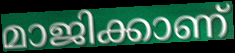
മാജിക്കാണ്